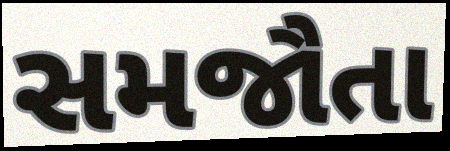
સમજૌતા